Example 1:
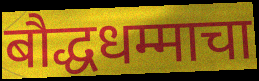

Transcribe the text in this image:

बौद्धधम्माचा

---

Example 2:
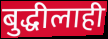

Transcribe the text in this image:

बुद्धीलाही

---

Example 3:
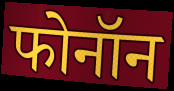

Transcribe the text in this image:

फोनॉन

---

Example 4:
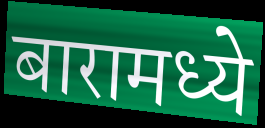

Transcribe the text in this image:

बारामध्ये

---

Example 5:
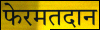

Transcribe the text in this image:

फेरमतदान